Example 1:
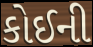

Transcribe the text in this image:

કોઈની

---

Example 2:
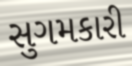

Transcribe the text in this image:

સુગમકારી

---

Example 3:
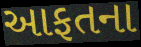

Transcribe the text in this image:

આફતના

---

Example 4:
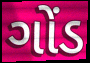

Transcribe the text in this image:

ગોંડ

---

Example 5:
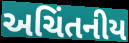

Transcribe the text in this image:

અચિંતનીય